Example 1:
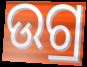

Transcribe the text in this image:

ଉଗ୍ର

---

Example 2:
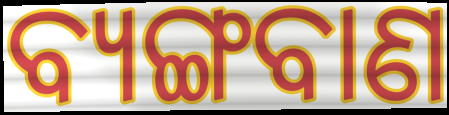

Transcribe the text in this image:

ବ୍ୟଙ୍ଗବାଣ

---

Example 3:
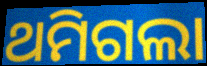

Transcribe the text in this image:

ଥମିଗଲା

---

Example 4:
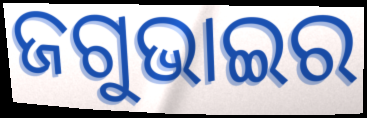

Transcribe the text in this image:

ଜଗୁଭାଇର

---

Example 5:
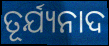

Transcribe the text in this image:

ତୂର୍ଯ୍ୟନାଦ